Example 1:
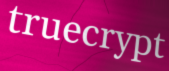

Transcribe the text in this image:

truecrypt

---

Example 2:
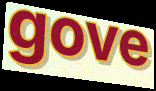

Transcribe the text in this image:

gove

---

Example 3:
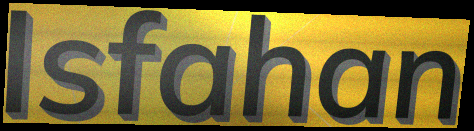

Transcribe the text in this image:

Isfahan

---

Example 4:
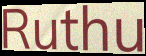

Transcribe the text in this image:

Ruthu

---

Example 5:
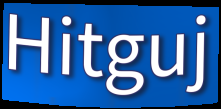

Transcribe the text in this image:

Hitguj